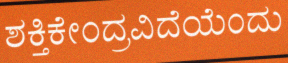
ಶಕ್ತಿಕೇಂದ್ರವಿದೆಯೆಂದು